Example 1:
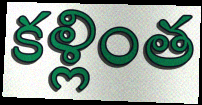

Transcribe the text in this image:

కళ్లింత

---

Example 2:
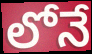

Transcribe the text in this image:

లోనే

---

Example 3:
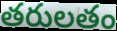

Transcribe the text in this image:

తరులతం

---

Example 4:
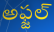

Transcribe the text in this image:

అఫ్జల్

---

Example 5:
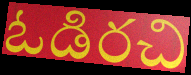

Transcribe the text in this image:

ఓడిరచి